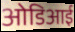
ओडिआई